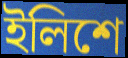
ইলিশে